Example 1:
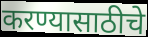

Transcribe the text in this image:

करण्यासाठीचे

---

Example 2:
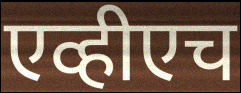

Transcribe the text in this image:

एव्हीएच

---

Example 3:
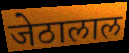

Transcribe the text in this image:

जेठालाल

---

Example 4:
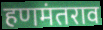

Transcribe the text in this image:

हणमंतराव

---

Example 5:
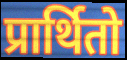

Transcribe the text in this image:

प्रार्थितो